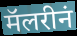
मॅलरीनं